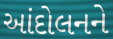
આંદોલનને